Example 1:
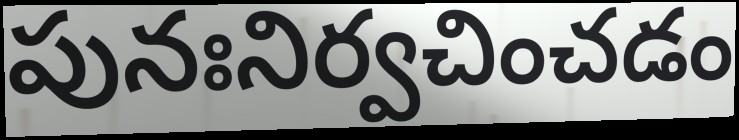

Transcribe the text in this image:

పునఃనిర్వచించడం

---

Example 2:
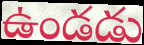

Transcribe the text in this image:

ఉండడు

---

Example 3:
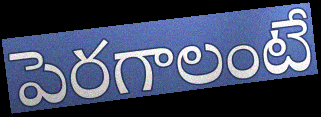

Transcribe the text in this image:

పెరగాలంటే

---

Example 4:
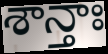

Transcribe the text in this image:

శాన్తాః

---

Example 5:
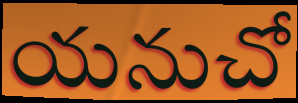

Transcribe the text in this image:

యనుచో